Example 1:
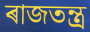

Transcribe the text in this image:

ৰাজতন্ত্ৰ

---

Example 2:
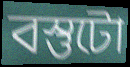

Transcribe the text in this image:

বস্তুটো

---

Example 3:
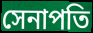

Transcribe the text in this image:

সেনাপতি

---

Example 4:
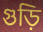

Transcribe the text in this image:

গুড়ি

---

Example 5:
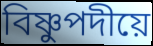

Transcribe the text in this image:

বিষ্ণুপদীয়ে